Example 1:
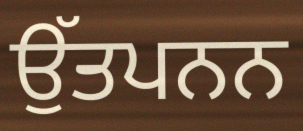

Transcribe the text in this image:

ਉੱਤਪਨਨ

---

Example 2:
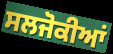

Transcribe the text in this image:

ਸਲਜੋਕੀਆਂ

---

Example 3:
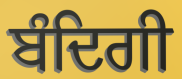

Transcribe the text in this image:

ਬੰਦਿਗੀ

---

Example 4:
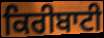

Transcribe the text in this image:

ਕਿਰੀਬਾਟੀ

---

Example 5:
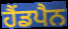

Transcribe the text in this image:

ਹੈਂਡਪੈਨ